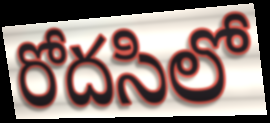
రోదసిలో